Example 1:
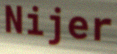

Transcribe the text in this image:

Nijer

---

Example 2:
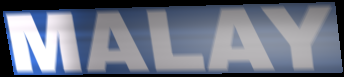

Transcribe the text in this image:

MALAY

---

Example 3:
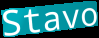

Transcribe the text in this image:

Stavo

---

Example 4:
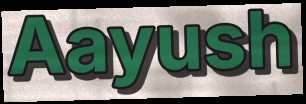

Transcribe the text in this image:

Aayush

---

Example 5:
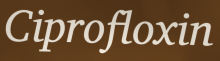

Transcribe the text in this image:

Ciprofloxin